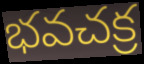
భవచక్ర